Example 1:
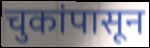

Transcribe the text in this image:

चुकांपासून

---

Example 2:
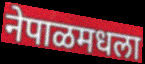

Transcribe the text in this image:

नेपाळमधला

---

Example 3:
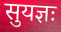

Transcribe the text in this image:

सुयज्ञः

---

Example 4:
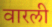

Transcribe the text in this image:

वारली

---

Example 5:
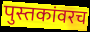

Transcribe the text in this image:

पुस्तकांवरच